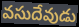
వసుదేవుడు